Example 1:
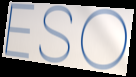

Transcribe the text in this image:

ESO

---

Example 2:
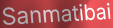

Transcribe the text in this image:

Sanmatibai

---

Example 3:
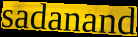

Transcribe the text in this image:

sadanand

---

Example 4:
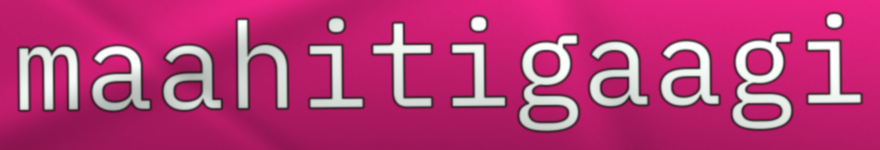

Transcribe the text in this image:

maahitigaagi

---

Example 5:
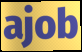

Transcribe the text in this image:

ajob